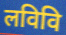
लविवि